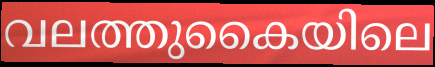
വലത്തുകൈയിലെ